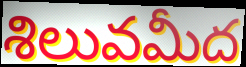
శిలువమీద